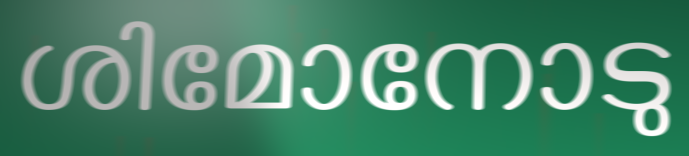
ശിമോനോടു